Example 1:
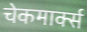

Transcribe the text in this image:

चेकमार्क्स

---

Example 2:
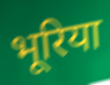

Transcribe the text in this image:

भूरिया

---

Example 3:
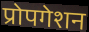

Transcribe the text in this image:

प्रोपगेशन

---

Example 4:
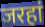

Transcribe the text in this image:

जरहां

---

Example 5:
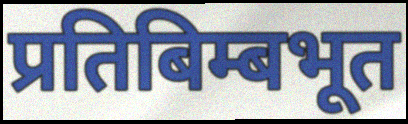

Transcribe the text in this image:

प्रतिबिम्बभूत